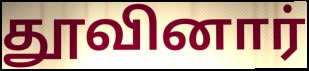
தூவினார்